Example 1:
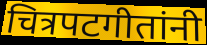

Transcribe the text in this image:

चित्रपटगीतांनी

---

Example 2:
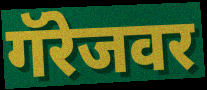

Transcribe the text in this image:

गॅरेजवर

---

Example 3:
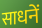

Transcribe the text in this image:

साधनें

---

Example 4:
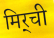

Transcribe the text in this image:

मिर्ची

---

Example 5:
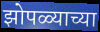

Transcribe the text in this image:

झोपळ्याच्या